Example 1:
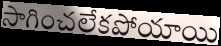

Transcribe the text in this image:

సాగించలేకపోయాయి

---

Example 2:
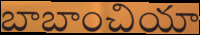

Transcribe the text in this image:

బాబాంచియా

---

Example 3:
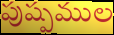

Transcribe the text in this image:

పుష్పముల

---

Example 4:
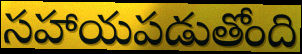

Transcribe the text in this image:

సహాయపడుతోంది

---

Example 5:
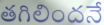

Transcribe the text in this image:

తగిలిందనే